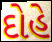
દોહે